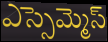
ఎస్సెమ్మెస్